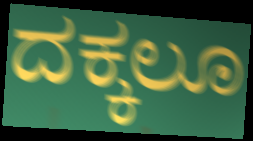
ದಕ್ಕಲೂ